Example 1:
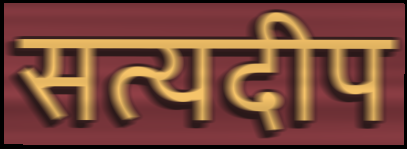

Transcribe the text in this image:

सत्यदीप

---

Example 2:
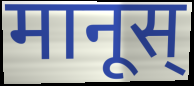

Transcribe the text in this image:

मानूस्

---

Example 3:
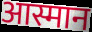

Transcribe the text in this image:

आस्मान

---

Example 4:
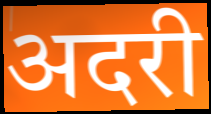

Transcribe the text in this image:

अदरी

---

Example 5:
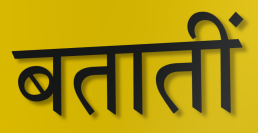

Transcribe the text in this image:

बतातीं